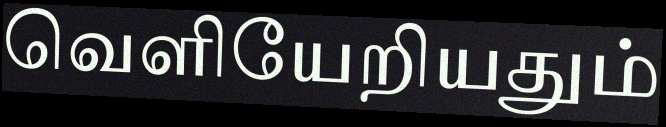
வெளியேறியதும்